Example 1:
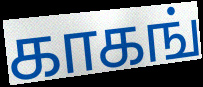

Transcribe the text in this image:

காகங்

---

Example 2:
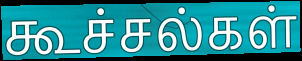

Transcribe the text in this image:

கூச்சல்கள்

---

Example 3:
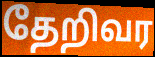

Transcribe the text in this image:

தேறிவர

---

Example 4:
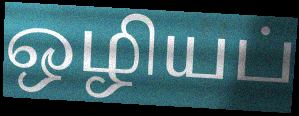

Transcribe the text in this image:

ஒழியப்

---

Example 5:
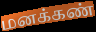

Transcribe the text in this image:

மனக்கண்